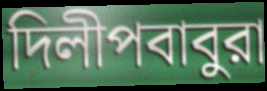
দিলীপবাবুরা